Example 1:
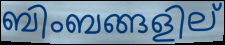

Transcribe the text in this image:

ബിംബങ്ങളില്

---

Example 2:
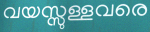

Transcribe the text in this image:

വയസ്സുള്ളവരെ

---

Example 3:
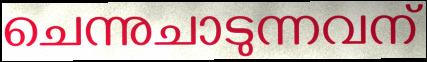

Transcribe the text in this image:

ചെന്നുചാടുന്നവന്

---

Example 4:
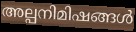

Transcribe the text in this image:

അല്പനിമിഷങ്ങൾ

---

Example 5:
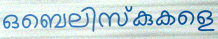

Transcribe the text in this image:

ഒബെലിസ്കുകളെ